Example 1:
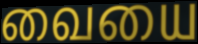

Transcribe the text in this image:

வையை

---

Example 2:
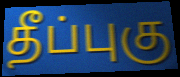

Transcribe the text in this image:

தீப்புகு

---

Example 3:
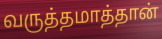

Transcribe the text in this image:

வருத்தமாத்தான்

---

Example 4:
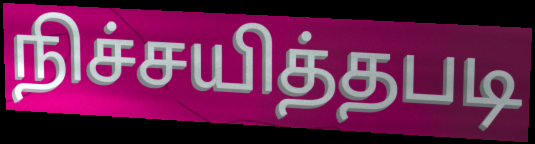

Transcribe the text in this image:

நிச்சயித்தபடி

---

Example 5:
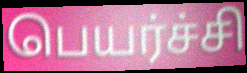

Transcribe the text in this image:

பெயர்ச்சி